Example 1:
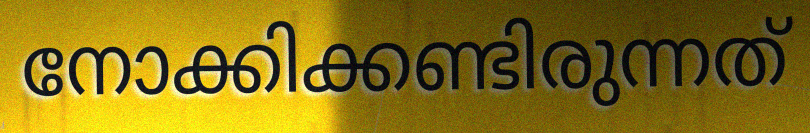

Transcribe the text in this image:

നോക്കിക്കണ്ടിരുന്നത്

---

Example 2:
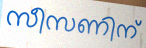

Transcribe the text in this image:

സീസണിന്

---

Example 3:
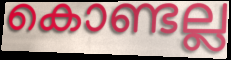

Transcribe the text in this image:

കൊണ്ടല്ല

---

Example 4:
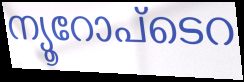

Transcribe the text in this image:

ന്യൂറോപ്ടെറ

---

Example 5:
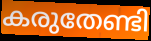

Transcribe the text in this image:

കരുതേണ്ടി